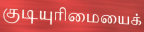
குடியுரிமையைக்